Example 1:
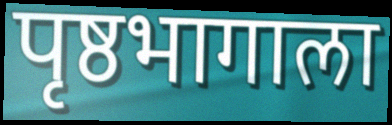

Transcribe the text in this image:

पृष्ठभागाला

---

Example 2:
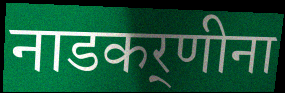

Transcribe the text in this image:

नाडकर्णीना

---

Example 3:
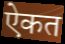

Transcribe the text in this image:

ऐकत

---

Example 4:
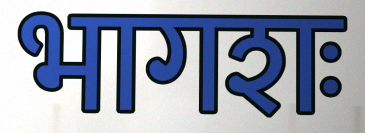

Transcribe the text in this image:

भागशः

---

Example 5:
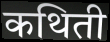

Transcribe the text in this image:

कथिती